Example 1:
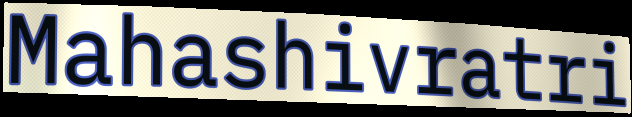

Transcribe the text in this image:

Mahashivratri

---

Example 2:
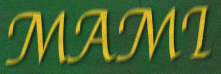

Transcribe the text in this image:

MAMI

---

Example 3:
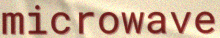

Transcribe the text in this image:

microwave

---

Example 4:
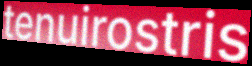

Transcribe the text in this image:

tenuirostris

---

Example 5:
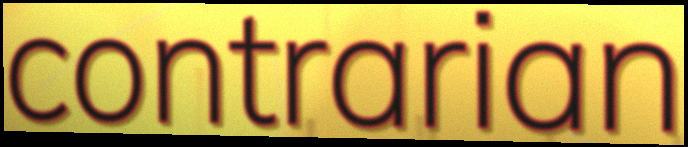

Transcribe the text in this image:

contrarian